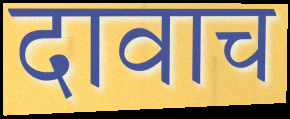
दावाच